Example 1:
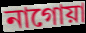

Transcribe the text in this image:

নাগোয়া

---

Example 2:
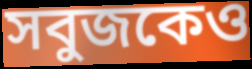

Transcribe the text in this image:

সবুজকেও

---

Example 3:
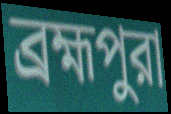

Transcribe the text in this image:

ব্রহ্মপুরা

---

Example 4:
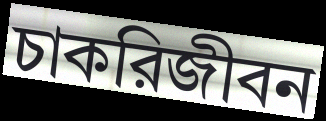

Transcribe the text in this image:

চাকরিজীবন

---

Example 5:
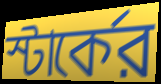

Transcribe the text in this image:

স্টার্কের